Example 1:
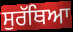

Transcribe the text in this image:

ਸੁਰੱਥਿਆ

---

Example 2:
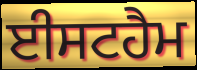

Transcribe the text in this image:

ਈਸਟਹੈਮ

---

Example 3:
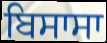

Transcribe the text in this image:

ਬਿਸਾਸਾ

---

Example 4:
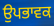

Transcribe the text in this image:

ਉਪਭਾਵਕ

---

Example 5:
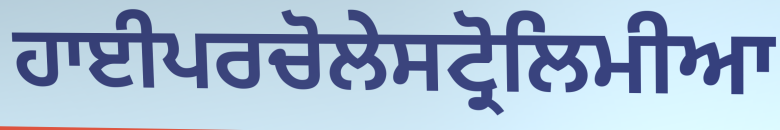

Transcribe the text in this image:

ਹਾਈਪਰਚੋਲੇਸਟ੍ਰੋਲਿਮੀਆ